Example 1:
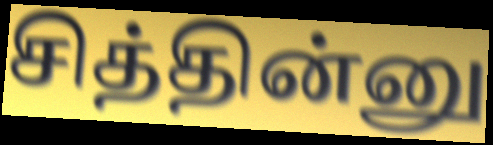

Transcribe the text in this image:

சித்தின்னு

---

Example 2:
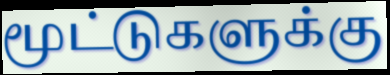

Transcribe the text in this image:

மூட்டுகளுக்கு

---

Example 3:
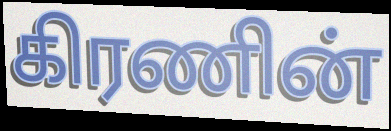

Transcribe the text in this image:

கிரணின்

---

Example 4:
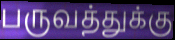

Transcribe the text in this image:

பருவத்துக்கு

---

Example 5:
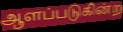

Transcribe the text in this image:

ஆளப்படுகின்ற